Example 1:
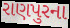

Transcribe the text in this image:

રાણપુરના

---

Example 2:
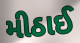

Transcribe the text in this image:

મીઠાઈ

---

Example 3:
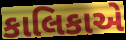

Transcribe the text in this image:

કાલિકાએ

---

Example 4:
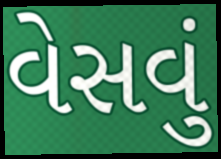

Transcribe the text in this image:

વેસવું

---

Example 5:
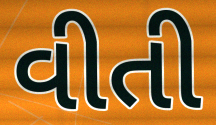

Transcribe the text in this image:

વીતી